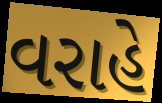
વરાહે